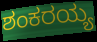
ಶಂಕರಯ್ಯ